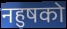
नहुषको